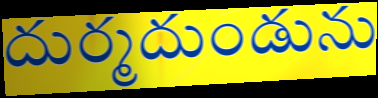
దుర్మదుండును